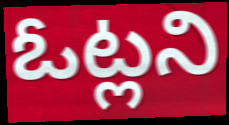
ఓట్లని